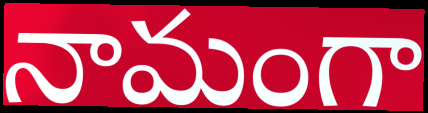
నామంగా